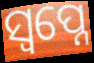
ସ୍ବପ୍ନେ